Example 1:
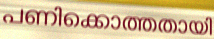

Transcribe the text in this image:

പണിക്കൊത്തതായി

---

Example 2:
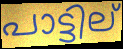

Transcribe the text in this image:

പാട്ടില്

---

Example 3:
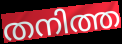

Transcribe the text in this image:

തനിത്ത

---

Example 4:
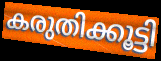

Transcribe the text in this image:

കരുതിക്കൂട്ടി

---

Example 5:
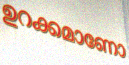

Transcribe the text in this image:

ഉറക്കമാണോ